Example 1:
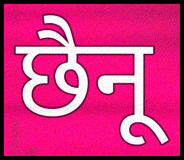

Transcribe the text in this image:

छैनू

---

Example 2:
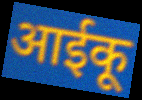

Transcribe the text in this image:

आईकू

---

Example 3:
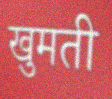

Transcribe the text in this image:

खुमती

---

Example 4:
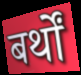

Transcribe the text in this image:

बर्थों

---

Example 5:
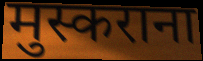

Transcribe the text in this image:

मुस्कराना